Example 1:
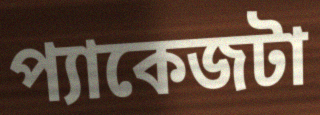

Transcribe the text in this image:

প্যাকেজটা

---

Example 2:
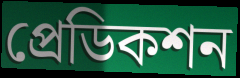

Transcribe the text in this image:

প্রেডিকশন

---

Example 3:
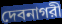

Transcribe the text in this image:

দেবনাগরী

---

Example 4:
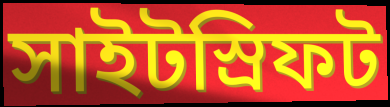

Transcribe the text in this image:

সাইটস্রিফট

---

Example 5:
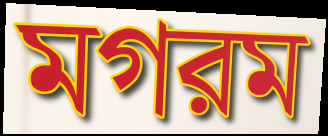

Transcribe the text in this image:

মগরম